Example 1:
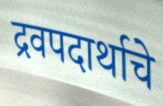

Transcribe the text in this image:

द्रवपदार्थाचे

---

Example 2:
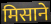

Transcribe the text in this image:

मिसाने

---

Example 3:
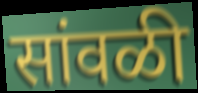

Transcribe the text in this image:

सांवळी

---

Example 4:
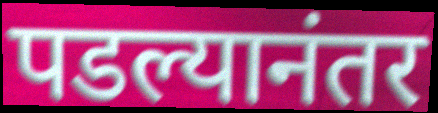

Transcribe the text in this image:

पडल्यानंतर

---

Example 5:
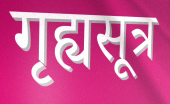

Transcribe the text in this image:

गृह्यसूत्र